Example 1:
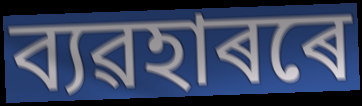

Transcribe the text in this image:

ব্যৱহাৰৰে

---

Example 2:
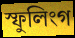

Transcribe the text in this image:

স্ফুলিংগ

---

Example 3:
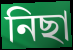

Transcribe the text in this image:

নিছা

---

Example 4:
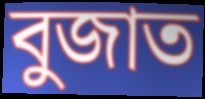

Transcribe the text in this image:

বুজাত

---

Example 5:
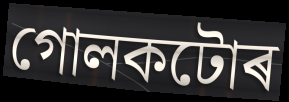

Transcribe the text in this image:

গোলকটোৰ